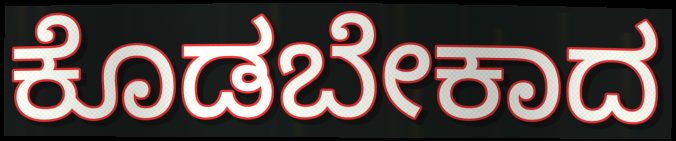
ಕೊಡಬೇಕಾದ